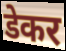
डेकर